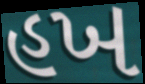
હખ